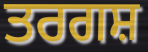
ਤਰਗਸ਼